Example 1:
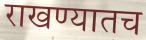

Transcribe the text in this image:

राखण्यातच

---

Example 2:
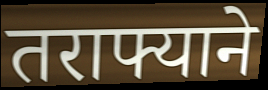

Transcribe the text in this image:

तराफ्याने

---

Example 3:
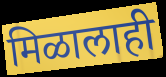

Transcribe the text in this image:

मिळालाही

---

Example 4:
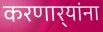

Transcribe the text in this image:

करणार्‍यांना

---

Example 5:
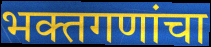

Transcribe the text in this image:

भक्तगणांचा